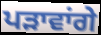
ਪੜਾਵਾਂਗੇ